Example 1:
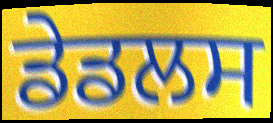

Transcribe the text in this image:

ਡੇਡਲਸ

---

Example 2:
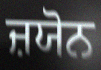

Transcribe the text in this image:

ਜ਼ਯੋਨ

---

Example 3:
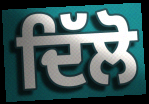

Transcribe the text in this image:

ਦਿੱਲੋ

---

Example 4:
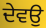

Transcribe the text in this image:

ਦੇਵਉ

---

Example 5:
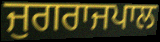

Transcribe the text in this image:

ਜੁਗਰਾਜਪਾਲ